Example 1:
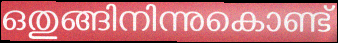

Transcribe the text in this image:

ഒതുങ്ങിനിന്നുകൊണ്ട്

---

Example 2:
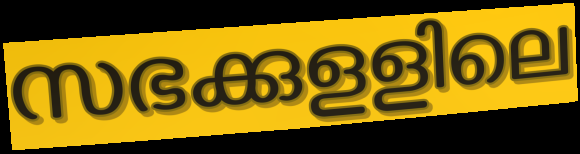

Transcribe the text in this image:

സഭക്കുളളിലെ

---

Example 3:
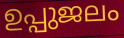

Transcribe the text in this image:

ഉപ്പുജലം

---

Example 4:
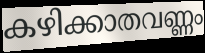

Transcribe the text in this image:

കഴിക്കാതവണ്ണം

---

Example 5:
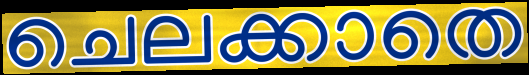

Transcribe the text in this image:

ചെലക്കാതെ